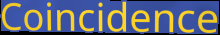
Coincidence